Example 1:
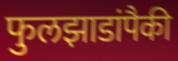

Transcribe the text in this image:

फुलझाडांपैकी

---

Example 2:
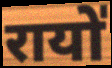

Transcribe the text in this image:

रायो॑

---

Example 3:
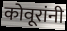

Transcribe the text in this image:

कोवूरांनी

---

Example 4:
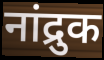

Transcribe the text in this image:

नांद्रुक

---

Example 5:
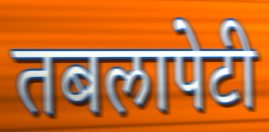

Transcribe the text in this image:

तबलापेटी